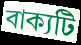
বাক্যটি